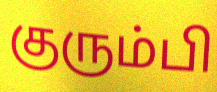
குரும்பி